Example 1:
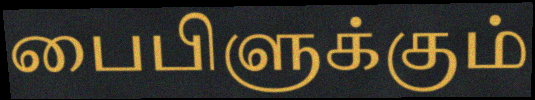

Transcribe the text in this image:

பைபிளுக்கும்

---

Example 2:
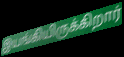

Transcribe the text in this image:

இயங்கியிருக்கிறார்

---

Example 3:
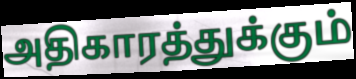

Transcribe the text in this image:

அதிகாரத்துக்கும்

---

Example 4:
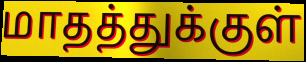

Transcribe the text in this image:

மாதத்துக்குள்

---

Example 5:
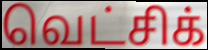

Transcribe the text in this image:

வெட்சிக்